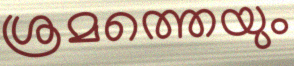
ശ്രമത്തെയും